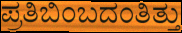
ಪ್ರತಿಬಿಂಬದಂತಿತ್ತು